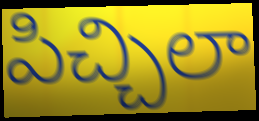
పిచ్చిలా